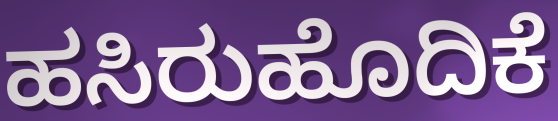
ಹಸಿರುಹೊದಿಕೆ